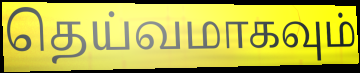
தெய்வமாகவும்